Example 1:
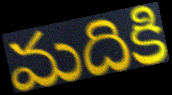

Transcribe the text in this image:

మదికి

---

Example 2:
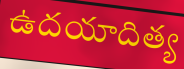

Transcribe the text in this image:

ఉదయాదిత్య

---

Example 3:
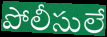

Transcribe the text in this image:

పోలీసులే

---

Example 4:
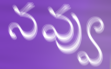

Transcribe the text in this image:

నవ్వు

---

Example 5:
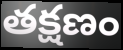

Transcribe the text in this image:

తక్షణం